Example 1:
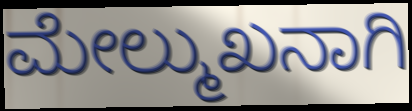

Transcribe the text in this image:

ಮೇಲ್ಮುಖನಾಗಿ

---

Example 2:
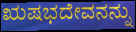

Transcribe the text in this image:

ಋಷಭದೇವನನ್ನು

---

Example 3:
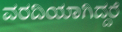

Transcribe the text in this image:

ವರದಿಯಾಗಿದ್ದರೆ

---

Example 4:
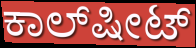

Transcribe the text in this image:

ಕಾಲ್‌ಷೀಟ್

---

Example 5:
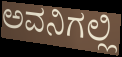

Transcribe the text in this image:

ಅವನಿಗಲ್ಲಿ